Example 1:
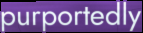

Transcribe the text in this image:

purportedly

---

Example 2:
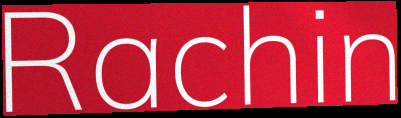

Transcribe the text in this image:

Rachin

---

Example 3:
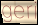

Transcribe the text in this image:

geri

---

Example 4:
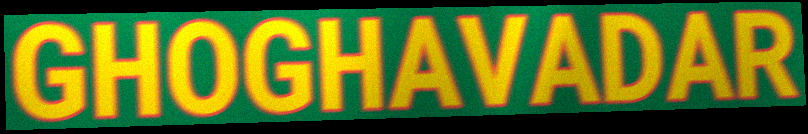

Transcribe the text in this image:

GHOGHAVADAR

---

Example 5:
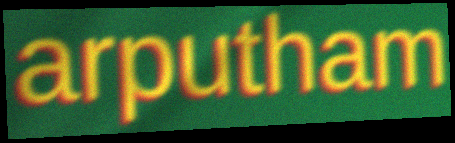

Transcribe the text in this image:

arputham